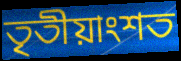
তৃতীয়াংশত